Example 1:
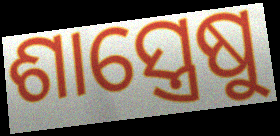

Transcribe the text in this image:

ଶାସ୍ତ୍ରେଷୁ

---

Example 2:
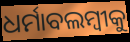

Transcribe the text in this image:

ଧର୍ମାବଲମ୍ବୀକୁ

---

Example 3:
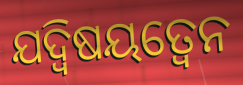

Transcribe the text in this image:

ଯଦ୍ଵିଷୟତ୍ଵେନ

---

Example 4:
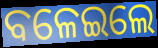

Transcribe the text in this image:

ବଳେଇଲେ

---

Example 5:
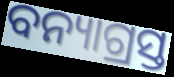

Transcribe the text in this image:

ବନ୍ୟାଗ୍ରସ୍ତ